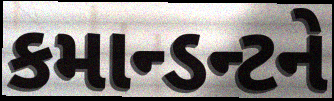
કમાન્ડન્ટને